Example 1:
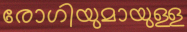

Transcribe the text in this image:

രോഗിയുമായുള്ള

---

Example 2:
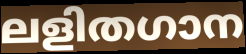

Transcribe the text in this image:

ലളിതഗാന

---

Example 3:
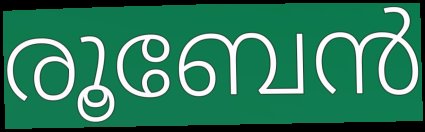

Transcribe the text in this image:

രൂബേൻ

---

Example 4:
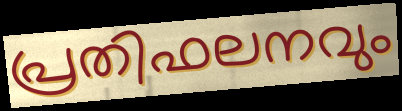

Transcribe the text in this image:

പ്രതിഫലനവും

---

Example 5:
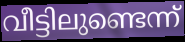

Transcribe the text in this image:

വീട്ടിലുണ്ടെന്ന്